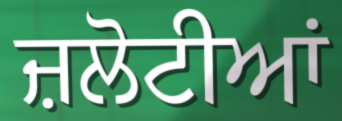
ਜ਼ਲੋਟੀਆਂ